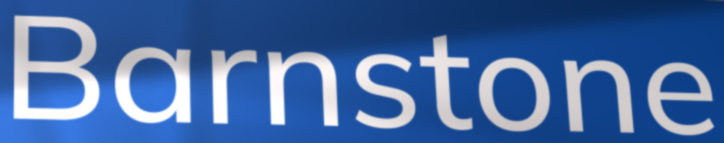
Barnstone